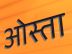
ओस्ता